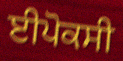
ਈਪੋਕਸੀ